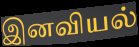
இனவியல்